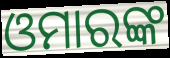
ଓମାରଙ୍କ